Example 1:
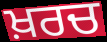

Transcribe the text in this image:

ਖ਼ਰਚ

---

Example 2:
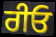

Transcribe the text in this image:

ਰੀਓ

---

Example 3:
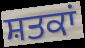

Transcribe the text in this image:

ਸ਼ਤਕਾਂ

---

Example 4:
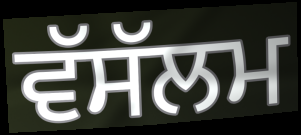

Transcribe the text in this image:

ਵੱਸੱਲਮ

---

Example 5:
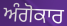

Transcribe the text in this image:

ਅੰਗੋਕਾਰ